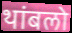
थांबलो